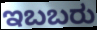
ಇಬಬರು